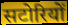
सटोरियों